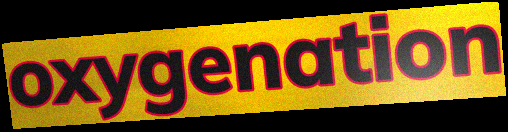
oxygenation